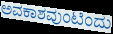
ಅವಕಾಶವುಂಟೆಂದು